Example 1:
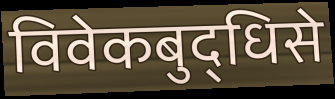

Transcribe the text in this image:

विवेकबुद्धिसे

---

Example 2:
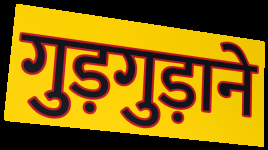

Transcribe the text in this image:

गुड़गुड़ाने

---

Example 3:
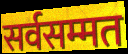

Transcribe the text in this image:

सर्वसम्मत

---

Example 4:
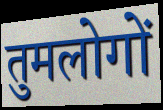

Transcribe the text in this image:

तुमलोगों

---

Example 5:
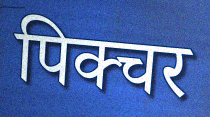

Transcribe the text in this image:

पिक्चर